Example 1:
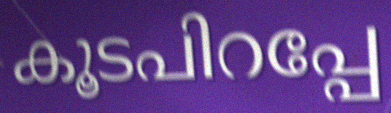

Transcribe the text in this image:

കൂടപിറപ്പേ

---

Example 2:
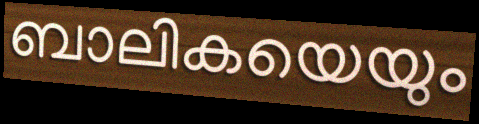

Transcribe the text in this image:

ബാലികയെയും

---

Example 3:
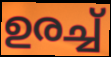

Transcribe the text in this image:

ഉരച്ച്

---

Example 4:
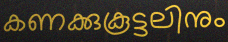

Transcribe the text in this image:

കണക്കുകൂട്ടലിനും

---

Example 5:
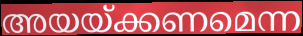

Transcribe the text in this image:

അയയ്ക്കണമെന്ന